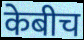
केबीच